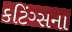
કટિંગ્સના